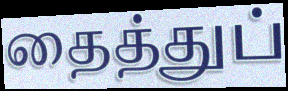
தைத்துப்